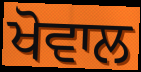
ਖੋਵਾਲ